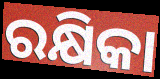
ରକ୍ଷିକା